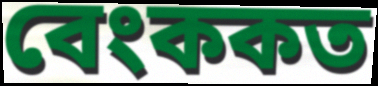
বেংককত